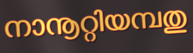
നാനൂറ്റിയമ്പതു